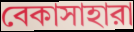
বেকাসাহারা